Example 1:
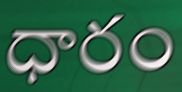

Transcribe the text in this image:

ధారం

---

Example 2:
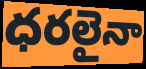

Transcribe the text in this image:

ధరలైనా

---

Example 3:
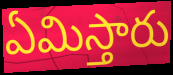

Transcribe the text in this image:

ఏమిస్తారు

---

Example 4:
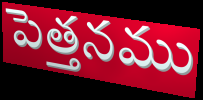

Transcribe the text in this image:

పెత్తనము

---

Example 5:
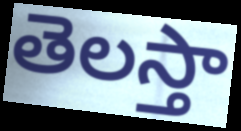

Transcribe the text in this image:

తెలస్తా